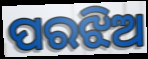
ପରଝିଅ